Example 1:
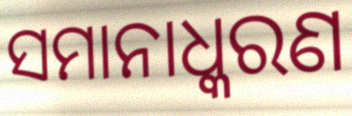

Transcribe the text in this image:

ସମାନାଧ୍କରଣ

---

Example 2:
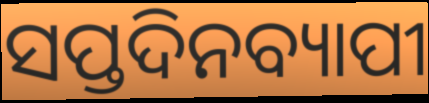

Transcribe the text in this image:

ସପ୍ତଦିନବ୍ୟାପୀ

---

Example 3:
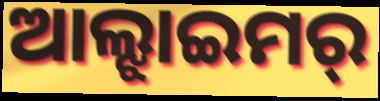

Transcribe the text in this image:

ଆଲ୍ଝାଇମର୍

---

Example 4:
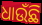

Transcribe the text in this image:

ଧାଉଁଛି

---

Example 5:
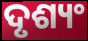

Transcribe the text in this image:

ଦୃଶ୍ୟଂ